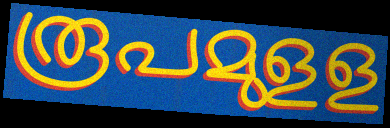
രൂപമുളള